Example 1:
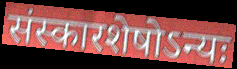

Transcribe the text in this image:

संस्कारशेषोऽन्यः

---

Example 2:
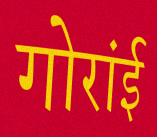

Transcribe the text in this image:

गोरांई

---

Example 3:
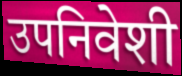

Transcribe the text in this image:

उपनिवेशी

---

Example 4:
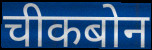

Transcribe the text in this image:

चीकबोन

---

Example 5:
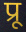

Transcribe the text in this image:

प्रू